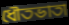
ধৌতভাতা